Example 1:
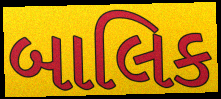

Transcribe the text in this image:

બાલિક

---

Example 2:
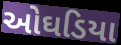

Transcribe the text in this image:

ઓઘડિયા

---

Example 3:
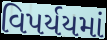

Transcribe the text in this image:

વિપર્યયમાં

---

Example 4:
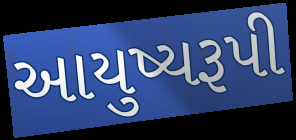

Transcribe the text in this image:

આયુષ્યરૂપી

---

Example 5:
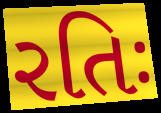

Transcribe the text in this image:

રતિઃ